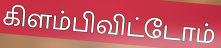
கிளம்பிவிட்டோம்